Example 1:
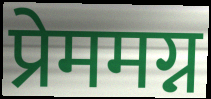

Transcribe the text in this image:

प्रेममग्न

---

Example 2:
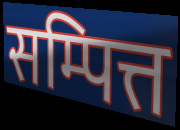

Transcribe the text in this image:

सम्पित्त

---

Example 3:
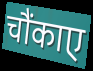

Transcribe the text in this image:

चौंकाए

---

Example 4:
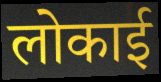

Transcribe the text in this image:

लोकाई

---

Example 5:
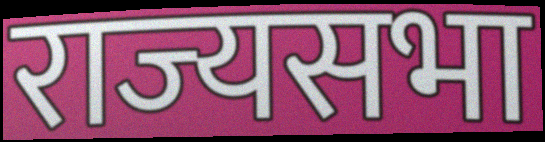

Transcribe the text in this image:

राज्‍यसभा